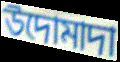
উদোমাদা